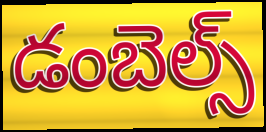
డంబెల్స్